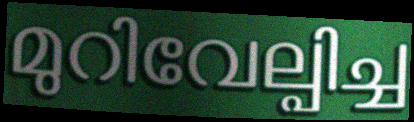
മുറിവേല്പിച്ച